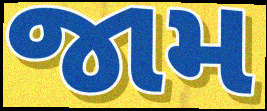
જામ